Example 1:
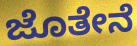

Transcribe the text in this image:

ಜೊತೇನೆ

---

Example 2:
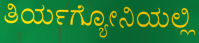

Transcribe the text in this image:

ತಿರ್ಯಗ್ಯೋನಿಯಲ್ಲಿ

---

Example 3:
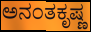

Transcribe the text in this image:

ಅನಂತಕೃಷ್ಣ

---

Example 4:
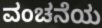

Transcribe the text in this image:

ವಂಚನೆಯ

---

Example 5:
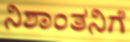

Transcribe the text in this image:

ನಿಶಾಂತನಿಗೆ